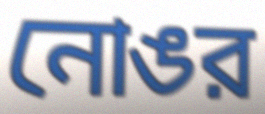
নোঙর